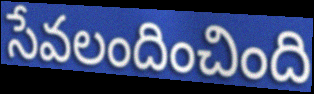
సేవలందించింది